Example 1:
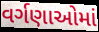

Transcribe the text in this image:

વર્ગણાઓમાં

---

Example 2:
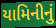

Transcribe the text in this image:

યામિનીનું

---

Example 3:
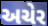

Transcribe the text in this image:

અચેર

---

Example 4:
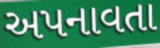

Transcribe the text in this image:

અપનાવતા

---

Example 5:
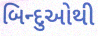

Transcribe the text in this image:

બિન્દુઓથી